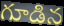
గూడిన